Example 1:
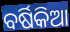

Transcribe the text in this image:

ବର୍ଷିକିଆ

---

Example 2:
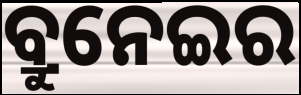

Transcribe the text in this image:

ବ୍ରୁନେଇର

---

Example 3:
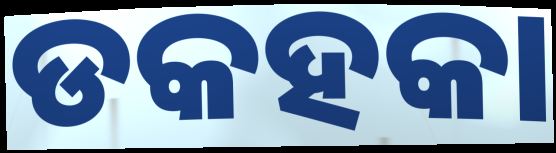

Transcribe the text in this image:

ଡକହକା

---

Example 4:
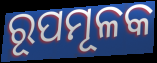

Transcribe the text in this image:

ରୂପମୂଳକ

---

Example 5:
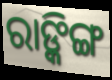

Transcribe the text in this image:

ରାଙ୍କିଙ୍ଗ